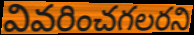
వివరించగలరని